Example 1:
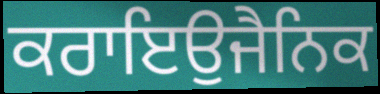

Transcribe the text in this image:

ਕਰਾਇਉਜੈਨਿਕ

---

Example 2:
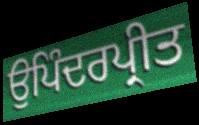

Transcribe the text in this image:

ਉਪਿੰਦਰਪ੍ਰੀਤ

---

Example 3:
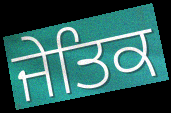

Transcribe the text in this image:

ਜੇਤਿਕ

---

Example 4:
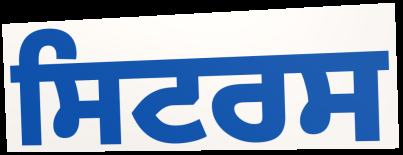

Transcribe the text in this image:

ਸਿਟਰਸ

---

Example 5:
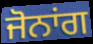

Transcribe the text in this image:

ਜੋਨਾਂਗ